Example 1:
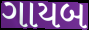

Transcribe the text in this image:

ગાયબ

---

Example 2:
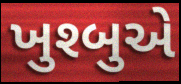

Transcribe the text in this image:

ખુશ્બુએ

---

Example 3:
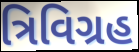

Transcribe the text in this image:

ત્રિવિગ્રહ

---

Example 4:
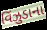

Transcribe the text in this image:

વિંઝુડાના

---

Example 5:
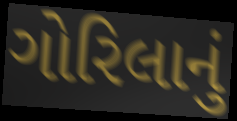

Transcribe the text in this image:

ગોરિલાનું